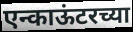
एन्काऊंटरच्या